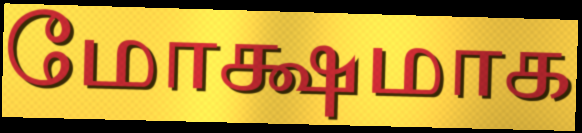
மோக்ஷமாக